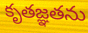
కృతజ్ఞతను